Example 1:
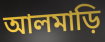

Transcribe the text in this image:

আলমাড়ি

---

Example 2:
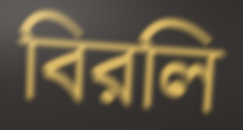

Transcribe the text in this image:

বিরলি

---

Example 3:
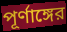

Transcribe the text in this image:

পূর্ণাঙ্গের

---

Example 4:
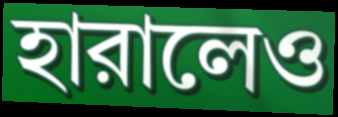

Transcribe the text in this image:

হারালেও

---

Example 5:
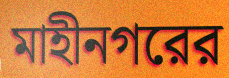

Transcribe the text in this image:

মাহীনগরের